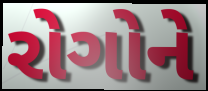
રોગોને